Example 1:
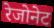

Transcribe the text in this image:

रेजोनेट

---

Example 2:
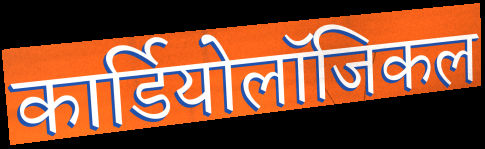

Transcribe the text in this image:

कार्डियोलॉजिकल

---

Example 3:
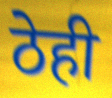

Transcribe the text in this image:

ठेही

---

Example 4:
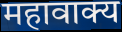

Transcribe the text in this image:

महावाक्य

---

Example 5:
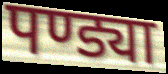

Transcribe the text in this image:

पण्ड्या